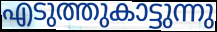
എടുത്തുകാട്ടുന്നു